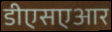
डीएसएआर